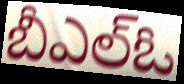
బీఎల్ఓ